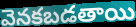
వెనకబడతాయి